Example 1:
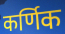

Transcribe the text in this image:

कर्णिक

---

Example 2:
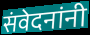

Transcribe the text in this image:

संवेदनांनी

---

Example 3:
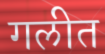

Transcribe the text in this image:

गलीत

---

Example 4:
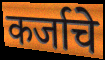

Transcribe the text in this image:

कर्जाचे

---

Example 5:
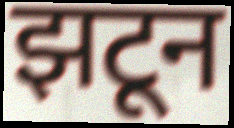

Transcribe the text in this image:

झटून